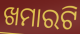
ଖମାରଟି